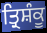
ਤ੍ਰਿਸ਼ੰਕੂ